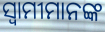
ସ୍ବାମୀମାନଙ୍କ